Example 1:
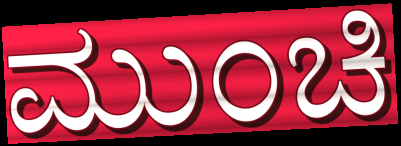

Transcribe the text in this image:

ಮುಂಚಿ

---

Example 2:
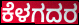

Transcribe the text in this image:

ಕೆಳಗದರ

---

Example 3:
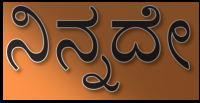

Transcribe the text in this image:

ನಿನ್ನದೇ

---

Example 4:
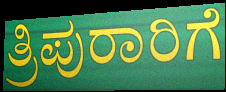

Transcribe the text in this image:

ತ್ರಿಪುರಾರಿಗೆ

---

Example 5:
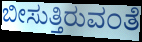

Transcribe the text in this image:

ಬೀಸುತ್ತಿರುವಂತೆ